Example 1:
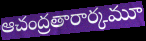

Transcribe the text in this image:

ఆచంద్రతారార్కమూ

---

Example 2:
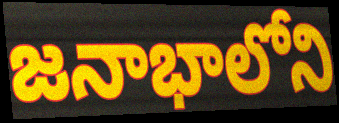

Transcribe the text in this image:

జనాభాలోని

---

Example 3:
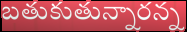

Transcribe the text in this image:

బతుకుతున్నారన్న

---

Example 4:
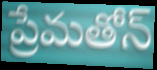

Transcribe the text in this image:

ప్రేమతోన్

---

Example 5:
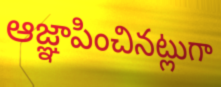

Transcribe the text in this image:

ఆజ్ఞాపించినట్లుగా